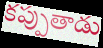
కప్పుతాడు